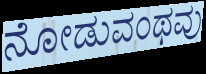
ನೋಡುವಂಥವು